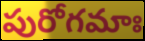
పురోగమాః